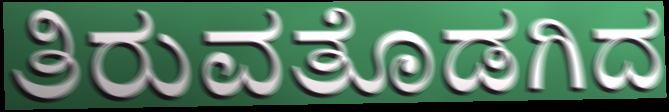
ತಿರುವತೊಡಗಿದ